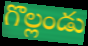
గొల్లండు